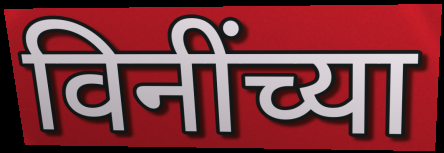
विनींच्या